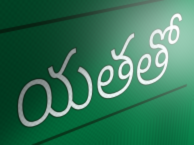
యతతో